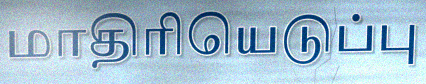
மாதிரியெடுப்பு